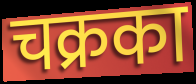
चक्रका